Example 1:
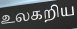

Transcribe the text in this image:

உலகறிய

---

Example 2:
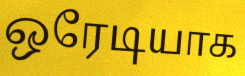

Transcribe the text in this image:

ஒரேடியாக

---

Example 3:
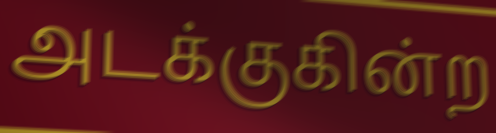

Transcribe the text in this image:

அடக்குகின்ற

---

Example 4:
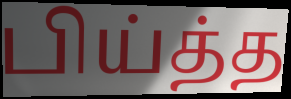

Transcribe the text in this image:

பிய்த்த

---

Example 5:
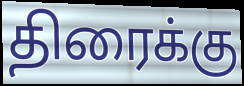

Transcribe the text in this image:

திரைக்கு